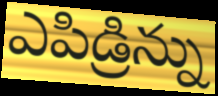
ఎపిడ్రిన్ను